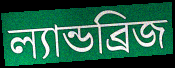
ল্যান্ডব্রিজ